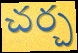
చర్చ